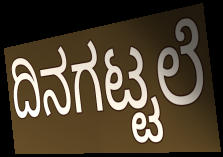
ದಿನಗಟ್ಟಲೆ